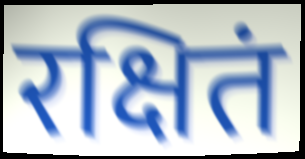
रक्षितं